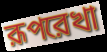
রূপরেখা